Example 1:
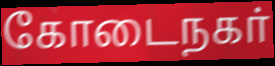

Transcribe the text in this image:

கோடைநகர்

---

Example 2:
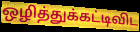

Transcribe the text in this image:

ஒழித்துக்கட்டிவிட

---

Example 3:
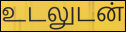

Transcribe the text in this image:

உடலுடன்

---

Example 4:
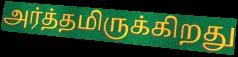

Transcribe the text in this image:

அர்த்தமிருக்கிறது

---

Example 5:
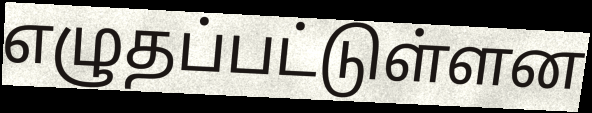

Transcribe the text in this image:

எழுதப்பட்டுள்ளன